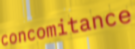
concomitance